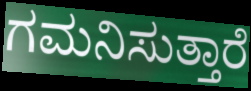
ಗಮನಿಸುತ್ತಾರೆ